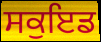
ਸਕੁਇਡ